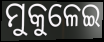
ମୁକୁଳେଇ